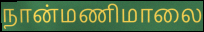
நான்மணிமாலை